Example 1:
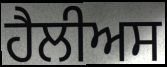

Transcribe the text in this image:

ਹੈਲੀਅਸ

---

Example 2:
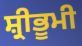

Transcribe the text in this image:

ਸ਼੍ਰੀਭੂਮੀ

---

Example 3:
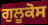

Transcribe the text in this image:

ਗੁਲੂਕੋਸ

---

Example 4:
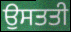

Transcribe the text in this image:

ਉਸਤਤੀ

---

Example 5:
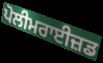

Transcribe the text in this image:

ਪੋਲੀਮਰਾਈਜ਼ਡ